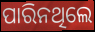
ପାରିନଥିଲେ